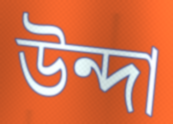
উন্দা